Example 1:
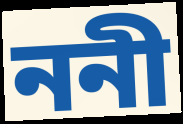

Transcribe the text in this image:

ননী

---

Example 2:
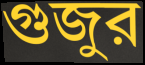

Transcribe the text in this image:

গুজুর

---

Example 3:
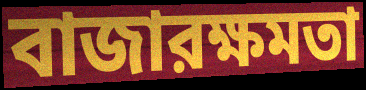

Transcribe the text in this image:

বাজারক্ষমতা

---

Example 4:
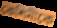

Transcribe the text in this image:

কেশিনীকে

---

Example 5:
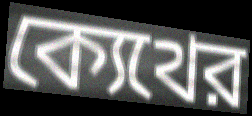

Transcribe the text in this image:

ক্যেথের